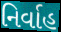
નિર્વાહ